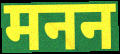
मनन